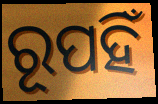
ରୂପହିଁ